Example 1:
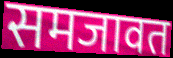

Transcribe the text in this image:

समजावत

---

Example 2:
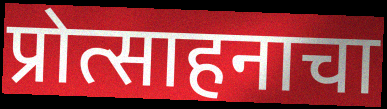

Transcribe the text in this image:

प्रोत्साहनाचा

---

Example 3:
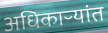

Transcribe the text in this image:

अधिकाऱ्यांत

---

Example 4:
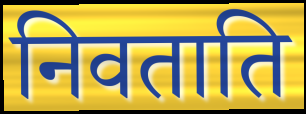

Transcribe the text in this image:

निवताति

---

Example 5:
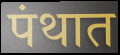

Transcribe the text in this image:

पंथात